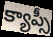
క్యాప్సీ